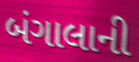
બંગાલાની